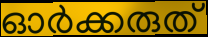
ഓർക്കരുത്